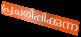
പ്രചരിപ്പിക്കുന്ന